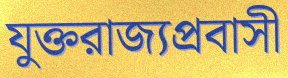
যুক্তরাজ্যপ্রবাসী